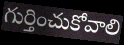
గుర్తించుకోవాలి